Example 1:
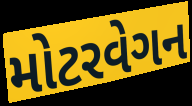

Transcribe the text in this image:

મોટરવેગન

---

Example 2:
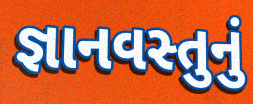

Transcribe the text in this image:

જ્ઞાનવસ્તુનું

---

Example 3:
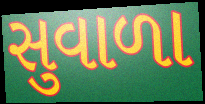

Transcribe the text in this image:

સુવાળા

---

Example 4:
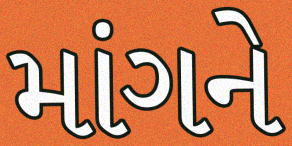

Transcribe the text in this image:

માંગને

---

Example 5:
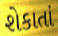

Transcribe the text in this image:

શેકાતાં